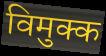
विमुक्क